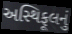
અસ્થિફૂલનું